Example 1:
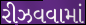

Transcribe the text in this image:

રીઝવવામાં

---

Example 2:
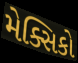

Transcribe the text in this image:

મેક્સિકો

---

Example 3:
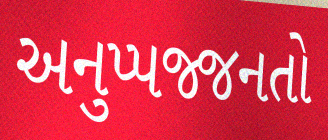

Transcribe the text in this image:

અનુપ્પજ્જનતો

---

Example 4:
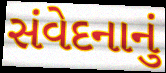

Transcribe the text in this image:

સંવેદનાનું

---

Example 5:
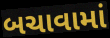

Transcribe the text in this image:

બચાવામાં